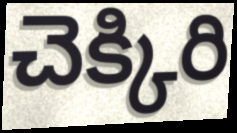
చెక్కిరి